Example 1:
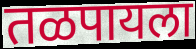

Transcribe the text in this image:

तळपायला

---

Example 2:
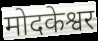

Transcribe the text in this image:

मोदकेश्वर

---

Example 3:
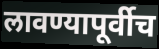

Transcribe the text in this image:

लावण्यापूर्वीच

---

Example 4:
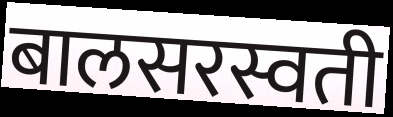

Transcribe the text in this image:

बालसरस्वती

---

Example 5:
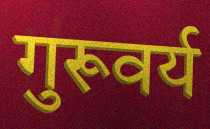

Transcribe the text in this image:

गुरूवर्य